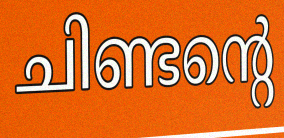
ചിണ്ടന്റെ